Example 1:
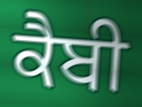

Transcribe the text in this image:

ਕੈਬੀ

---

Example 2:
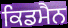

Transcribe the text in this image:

ਕਿਡਮੈਨ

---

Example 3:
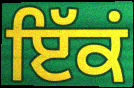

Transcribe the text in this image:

ਇੱਕਂ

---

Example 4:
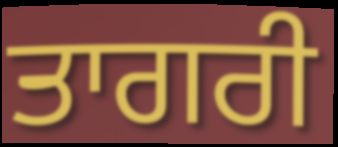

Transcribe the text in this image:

ਤਾਗਰੀ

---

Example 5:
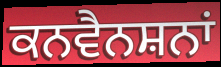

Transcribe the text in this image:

ਕਨਵੈਨਸ਼ਨਾਂ